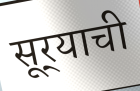
सूर्याची